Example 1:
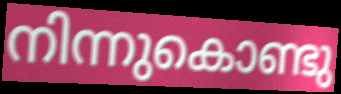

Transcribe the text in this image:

നിന്നുകൊണ്ടു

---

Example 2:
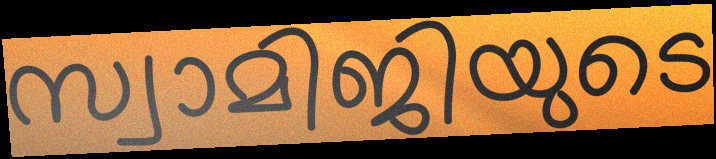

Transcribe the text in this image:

സ്വാമിജിയുടെ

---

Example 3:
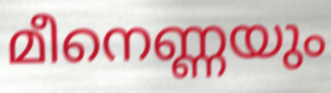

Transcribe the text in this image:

മീനെണ്ണയും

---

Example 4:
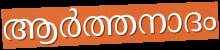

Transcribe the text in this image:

ആർത്തനാദം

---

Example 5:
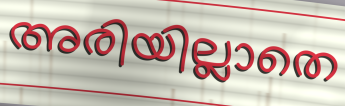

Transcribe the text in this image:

അരിയില്ലാതെ